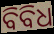
ବିବିଧ